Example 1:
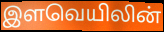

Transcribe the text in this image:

இளவெயிலின்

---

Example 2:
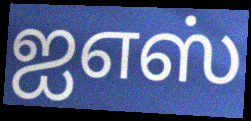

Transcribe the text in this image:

ஐஎஸ்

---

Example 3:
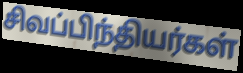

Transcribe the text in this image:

சிவப்பிந்தியர்கள்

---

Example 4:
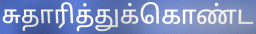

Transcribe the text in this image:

சுதாரித்துக்கொண்ட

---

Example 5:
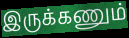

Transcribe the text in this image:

இருக்கணும்